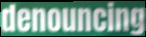
denouncing